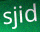
sjid